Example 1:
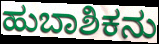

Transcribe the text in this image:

ಹುಬಾಶಿಕನು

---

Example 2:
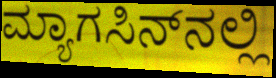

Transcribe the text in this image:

ಮ್ಯಾಗಸಿನ್‍ನಲ್ಲಿ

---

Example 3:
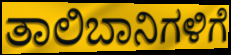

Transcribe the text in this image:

ತಾಲಿಬಾನಿಗಳಿಗೆ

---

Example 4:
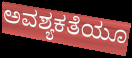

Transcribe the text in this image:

ಅವಶ್ಯಕತೆಯೂ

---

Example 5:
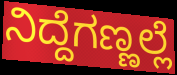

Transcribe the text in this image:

ನಿದ್ದೆಗಣ್ಣಲ್ಲೆ